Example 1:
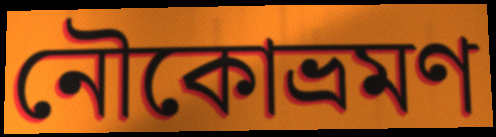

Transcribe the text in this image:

নৌকোভ্রমণ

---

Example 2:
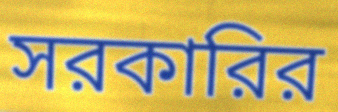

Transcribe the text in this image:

সরকারির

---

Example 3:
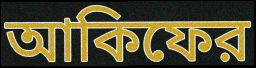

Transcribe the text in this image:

আকিফের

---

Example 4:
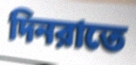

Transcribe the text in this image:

দিনরাতে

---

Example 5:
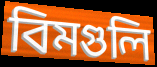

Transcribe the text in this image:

বিমগুলি